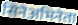
सिनेअभिनेता